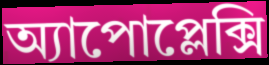
অ্যাপোপ্লেক্সি